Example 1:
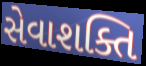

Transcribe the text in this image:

સેવાશક્તિ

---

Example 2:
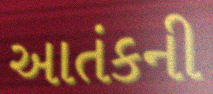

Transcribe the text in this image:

આતંકની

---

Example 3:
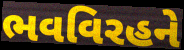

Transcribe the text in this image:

ભવવિરહને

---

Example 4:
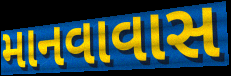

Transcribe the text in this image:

માનવાવાસ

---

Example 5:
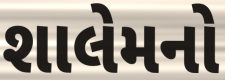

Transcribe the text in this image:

શાલેમનો